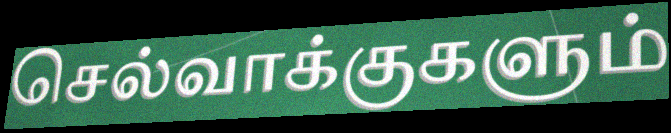
செல்வாக்குகளும்